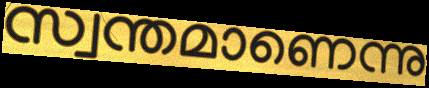
സ്വന്തമാണെന്നു